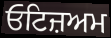
ਓਟਿਜ਼ਅਮ